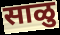
साळु